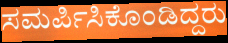
ಸಮರ್ಪಿಸಿಕೊಂಡಿದ್ದರು